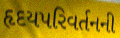
હૃદયપરિવર્તનની